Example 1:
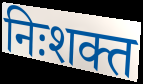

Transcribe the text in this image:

निःशक्त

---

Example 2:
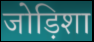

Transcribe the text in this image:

जोड़िशा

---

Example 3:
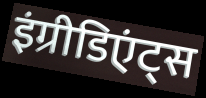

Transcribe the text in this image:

इंग्रीडिएंट्स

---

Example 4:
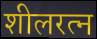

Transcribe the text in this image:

शीलरत्न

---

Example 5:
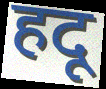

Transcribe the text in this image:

हदू